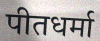
पीतधर्मा